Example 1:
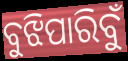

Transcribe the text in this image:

ବୁଝିପାରିବୁଁ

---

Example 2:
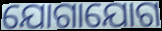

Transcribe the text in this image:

ଯୋଗାଯୋଗ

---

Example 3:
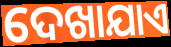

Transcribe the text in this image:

ଦେଖାଯାଏ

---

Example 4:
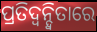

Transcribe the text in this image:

ପ୍ରତିଦ୍ୱନ୍ଦ୍ବିତାରେ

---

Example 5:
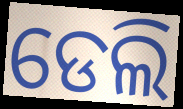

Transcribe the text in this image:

ଡେଲି